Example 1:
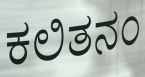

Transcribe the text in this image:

ಕಲಿತನಂ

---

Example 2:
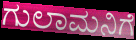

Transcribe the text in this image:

ಗುಲಾಮನಿಗೆ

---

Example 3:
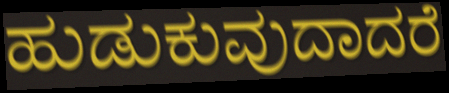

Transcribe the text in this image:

ಹುಡುಕುವುದಾದರೆ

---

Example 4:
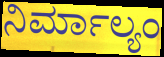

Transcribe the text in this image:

ನಿರ್ಮಾಲ್ಯಂ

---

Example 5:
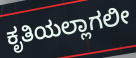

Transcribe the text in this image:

ಕೃತಿಯಲ್ಲಾಗಲೀ